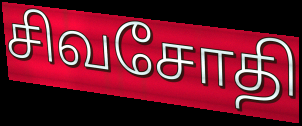
சிவசோதி